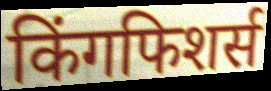
किंगफिशर्स